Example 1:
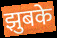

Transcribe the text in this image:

झुबके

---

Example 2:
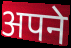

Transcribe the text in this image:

अपने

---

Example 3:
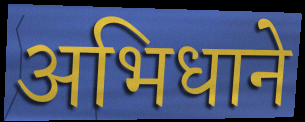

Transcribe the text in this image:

अभिधाने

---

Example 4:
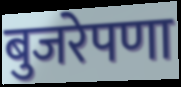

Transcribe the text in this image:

बुजरेपणा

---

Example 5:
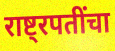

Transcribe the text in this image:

राष्ट्रपतींचा